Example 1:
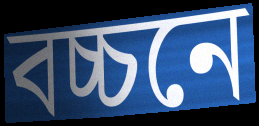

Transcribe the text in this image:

বচ্চনে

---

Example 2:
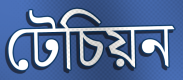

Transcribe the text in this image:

টেচিয়ন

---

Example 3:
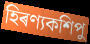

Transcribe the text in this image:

হিৰণ্যকশিপু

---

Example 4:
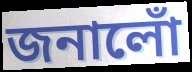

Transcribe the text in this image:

জনালোঁ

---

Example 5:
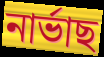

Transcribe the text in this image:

নাৰ্ভাছ